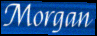
Morgan